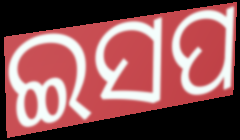
ଇସପ